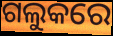
ଗଲୁକରେ